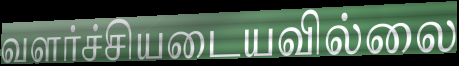
வளர்ச்சியடையவில்லை